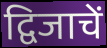
द्विजाचें